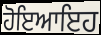
ਹੋਇਆਇਹ